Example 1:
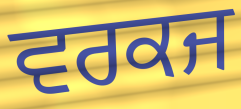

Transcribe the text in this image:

ਵਰਕਜ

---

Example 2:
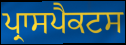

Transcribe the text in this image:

ਪ੍ਰਾਸਪੈਕਟਸ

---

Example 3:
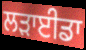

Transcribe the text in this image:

ਲੜਾਈਡਾ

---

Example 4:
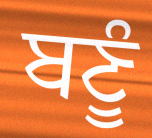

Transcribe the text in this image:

ਬਣੂੰ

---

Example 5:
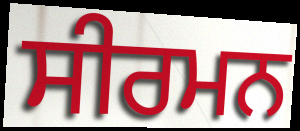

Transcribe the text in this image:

ਸੀਰਮਨ